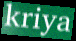
kriya